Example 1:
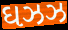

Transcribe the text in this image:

ઘઝઝ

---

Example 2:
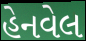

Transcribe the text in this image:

હેનવેલ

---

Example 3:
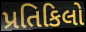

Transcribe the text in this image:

પ્રતિકિલો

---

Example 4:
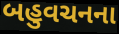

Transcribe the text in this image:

બહુવચનના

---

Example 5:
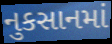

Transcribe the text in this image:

નુકસાનમાં